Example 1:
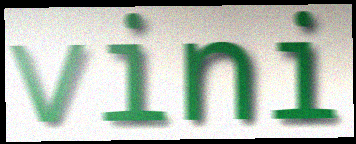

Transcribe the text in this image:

vini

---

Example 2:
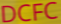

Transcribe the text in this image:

DCFC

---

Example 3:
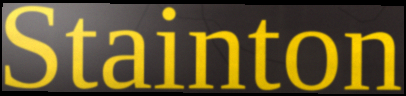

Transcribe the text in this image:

Stainton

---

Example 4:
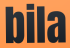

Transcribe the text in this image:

bila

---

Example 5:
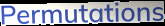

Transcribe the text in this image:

Permutations